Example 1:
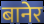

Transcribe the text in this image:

बानेर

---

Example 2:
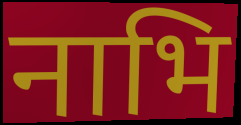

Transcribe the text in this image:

नाभि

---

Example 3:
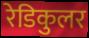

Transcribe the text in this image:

रेडिकुलर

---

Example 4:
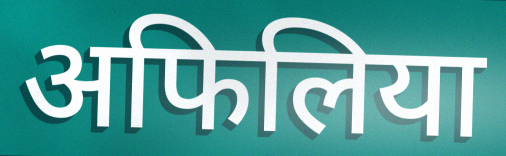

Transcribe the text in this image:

अफिलिया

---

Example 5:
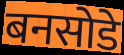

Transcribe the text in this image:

बनसोडे